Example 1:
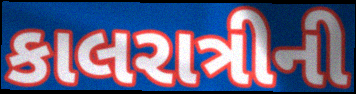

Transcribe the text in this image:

કાલરાત્રીની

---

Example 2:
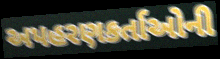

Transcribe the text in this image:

અપહરણકર્તાઓની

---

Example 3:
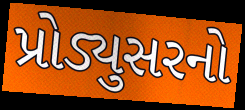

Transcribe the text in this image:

પ્રોડ્યુસરનો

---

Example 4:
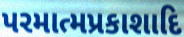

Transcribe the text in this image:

પરમાત્મપ્રકાશાદિ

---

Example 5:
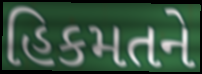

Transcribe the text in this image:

હિકમતને